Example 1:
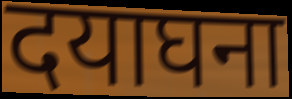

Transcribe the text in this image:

दयाघना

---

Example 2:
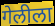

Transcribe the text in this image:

गेलीला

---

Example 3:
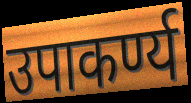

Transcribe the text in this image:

उपाकर्ण्य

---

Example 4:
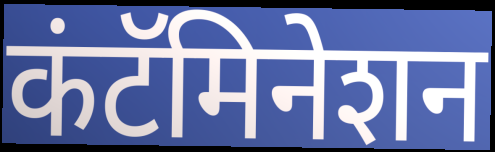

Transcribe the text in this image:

कंटॅमिनेशन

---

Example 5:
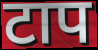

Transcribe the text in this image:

टाप